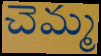
చెమ్మ